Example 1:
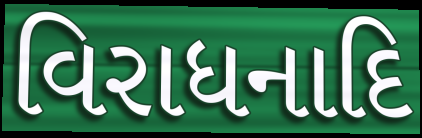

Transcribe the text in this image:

વિરાધનાદિ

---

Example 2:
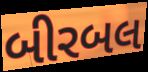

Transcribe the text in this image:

બીરબલ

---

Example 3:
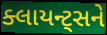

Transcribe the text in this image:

ક્લાયન્ટ્સને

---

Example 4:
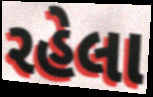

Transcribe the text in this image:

રહેલા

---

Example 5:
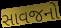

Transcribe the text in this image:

સાવજનો